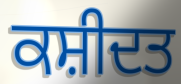
ਕਸ਼ੀਦਤ